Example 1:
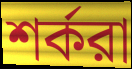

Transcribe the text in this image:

শর্করা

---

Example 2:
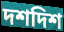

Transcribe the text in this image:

দশদিশ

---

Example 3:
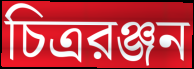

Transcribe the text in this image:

চিত্ররঞ্জন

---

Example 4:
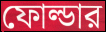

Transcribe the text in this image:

ফোল্ডার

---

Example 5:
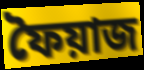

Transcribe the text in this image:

ফৈয়াজ